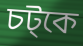
চট্‌কে